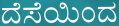
ದೆಸೆಯಿಂದ